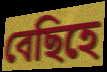
বেছিহে